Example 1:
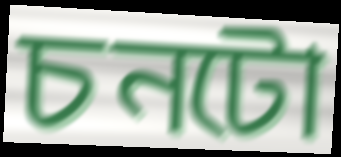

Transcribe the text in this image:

চনটো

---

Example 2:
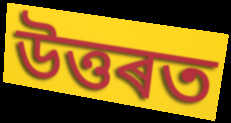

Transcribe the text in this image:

উত্তৰত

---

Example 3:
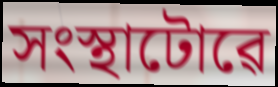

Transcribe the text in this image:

সংস্থাটোৱে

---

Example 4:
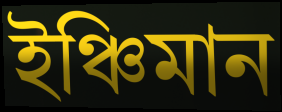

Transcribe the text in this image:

ইঞ্চিমান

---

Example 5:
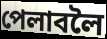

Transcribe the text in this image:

পেলাবলৈ